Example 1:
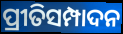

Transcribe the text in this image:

ପ୍ରୀତିସମ୍ପାଦନ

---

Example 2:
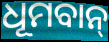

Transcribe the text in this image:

ଧୂମବାନ୍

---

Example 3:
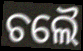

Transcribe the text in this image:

ଚଲୈ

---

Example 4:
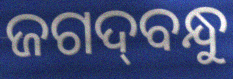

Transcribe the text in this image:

ଜଗଦ୍‌ବନ୍ଧୁ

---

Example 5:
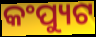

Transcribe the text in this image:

କଂପ୍ୟୁଟ